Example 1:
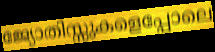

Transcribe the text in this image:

ജ്യോതിസ്സുകളെപ്പോലെ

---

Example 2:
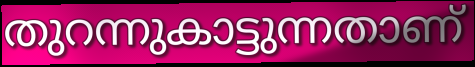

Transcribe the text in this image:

തുറന്നുകാട്ടുന്നതാണ്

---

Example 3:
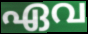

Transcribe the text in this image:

ഏവ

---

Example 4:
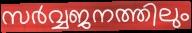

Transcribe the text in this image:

സർവ്വജനത്തിലും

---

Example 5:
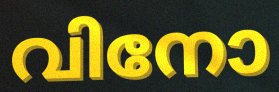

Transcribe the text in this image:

വിനോ